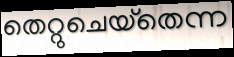
തെറ്റുചെയ്‌തെന്ന